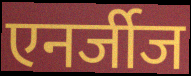
एनर्जीज